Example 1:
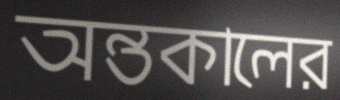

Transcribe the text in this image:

অন্তকালের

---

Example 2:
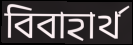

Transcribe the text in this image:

বিবাহার্থ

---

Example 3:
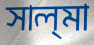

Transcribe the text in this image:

সাল্‌মা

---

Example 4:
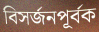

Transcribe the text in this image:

বিসর্জনপূর্বক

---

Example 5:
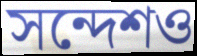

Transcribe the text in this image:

সন্দেশও